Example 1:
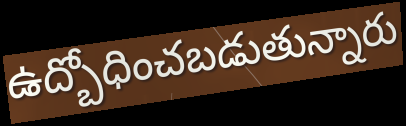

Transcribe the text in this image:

ఉద్బోధించబడుతున్నారు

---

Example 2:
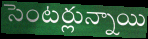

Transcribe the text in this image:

సెంటర్లున్నాయి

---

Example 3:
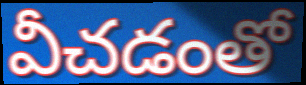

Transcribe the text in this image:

వీచడంతో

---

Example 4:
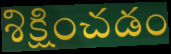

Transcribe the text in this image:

శిక్షించడం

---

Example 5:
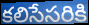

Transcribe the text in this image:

కలిసేసరికి